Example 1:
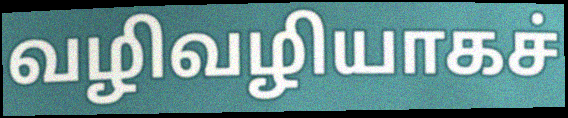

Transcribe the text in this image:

வழிவழியாகச்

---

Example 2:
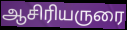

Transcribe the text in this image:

ஆசிரியருரை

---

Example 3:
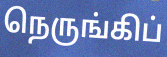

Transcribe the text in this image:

நெருங்கிப்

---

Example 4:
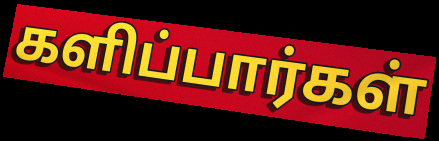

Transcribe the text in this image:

களிப்பார்கள்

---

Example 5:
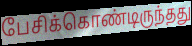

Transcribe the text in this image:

பேசிக்கொண்டிருந்தது